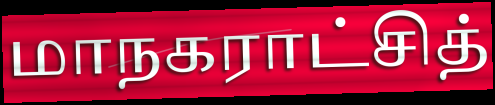
மாநகராட்சித்